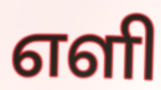
எளி